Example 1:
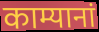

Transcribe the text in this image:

काम्यानां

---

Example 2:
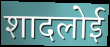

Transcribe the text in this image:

शादलोई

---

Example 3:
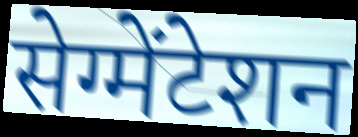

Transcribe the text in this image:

सेग्मेंटेशन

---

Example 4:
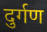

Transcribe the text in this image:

दुर्गण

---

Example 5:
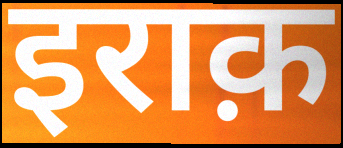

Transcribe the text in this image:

इराक़